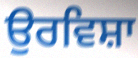
ਉਰਵਿਸ਼ਾ